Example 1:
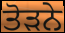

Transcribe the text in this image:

ਤੋੜਨੇ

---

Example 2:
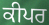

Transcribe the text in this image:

ਕੀਪਰ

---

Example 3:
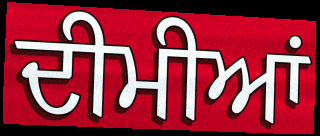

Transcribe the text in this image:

ਦੀਮੀਆਂ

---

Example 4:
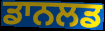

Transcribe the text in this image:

ਡਾਨਲਡ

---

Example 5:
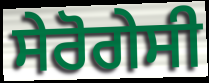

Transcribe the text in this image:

ਸੇਰੋਗੇਸੀ